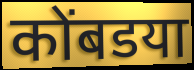
कोंबडया